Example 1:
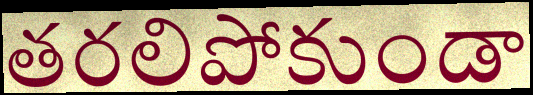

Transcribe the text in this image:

తరలిపోకుండా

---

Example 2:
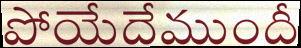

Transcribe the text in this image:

పోయేదేముందీ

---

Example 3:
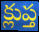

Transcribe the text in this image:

క్లుప్త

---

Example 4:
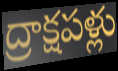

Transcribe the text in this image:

ద్రాక్షపళ్లు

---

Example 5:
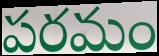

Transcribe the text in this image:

పరమం